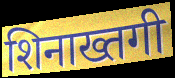
शिनाख्तगी